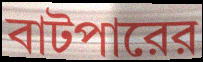
বাটপারের